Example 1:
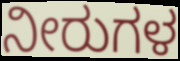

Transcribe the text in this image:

ನೀರುಗಳ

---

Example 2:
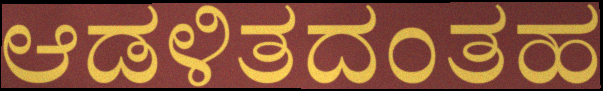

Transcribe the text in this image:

ಆಡಳಿತದಂತಹ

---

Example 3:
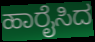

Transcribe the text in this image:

ಹಾರೈಸಿದ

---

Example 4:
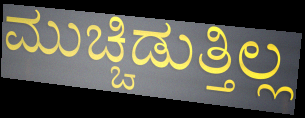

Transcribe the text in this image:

ಮುಚ್ಚಿಡುತ್ತಿಲ್ಲ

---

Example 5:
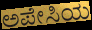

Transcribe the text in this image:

ಅಪೇಸಿಯ